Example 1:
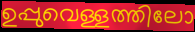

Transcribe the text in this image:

ഉപ്പുവെള്ളത്തിലോ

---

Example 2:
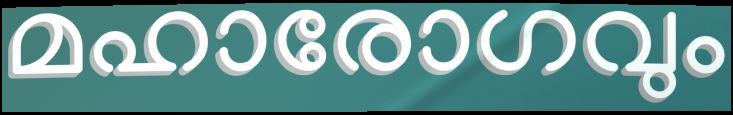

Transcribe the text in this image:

മഹാരോഗവും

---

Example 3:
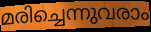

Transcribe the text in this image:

മരിച്ചെന്നുവരാം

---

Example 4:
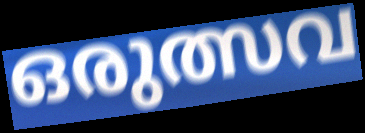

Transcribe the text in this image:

ഒരുത്സവ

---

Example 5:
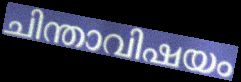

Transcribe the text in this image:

ചിന്താവിഷയം